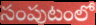
సంపుటంలో